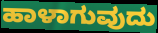
ಹಾಳಾಗುವುದು